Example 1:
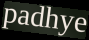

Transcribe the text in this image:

padhye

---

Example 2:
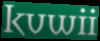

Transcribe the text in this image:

kuwii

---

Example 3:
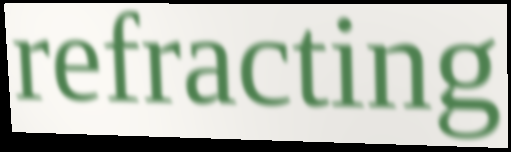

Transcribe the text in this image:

refracting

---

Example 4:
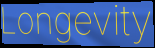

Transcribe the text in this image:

Longevity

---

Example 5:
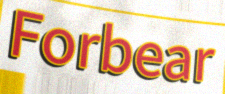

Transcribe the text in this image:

Forbear